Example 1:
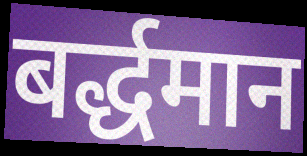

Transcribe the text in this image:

बर्द्धमान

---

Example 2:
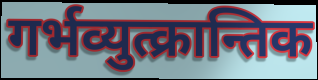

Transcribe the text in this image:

गर्भव्युत्क्रान्तिक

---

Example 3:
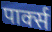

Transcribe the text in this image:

पार्क्‍स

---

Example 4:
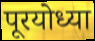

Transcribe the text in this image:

पूरयोध्या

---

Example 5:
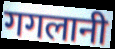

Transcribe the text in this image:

गगलानी